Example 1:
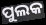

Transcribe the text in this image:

ପୁଲକ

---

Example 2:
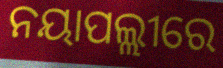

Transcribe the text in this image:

ନୟାପଲ୍ଲୀରେ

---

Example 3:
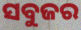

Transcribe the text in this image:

ସବୁଜର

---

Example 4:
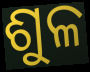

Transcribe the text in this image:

ଶୁଳ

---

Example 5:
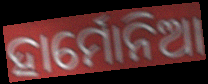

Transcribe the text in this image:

ହାର୍ମୋନିଆ